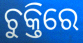
ଚୁକ୍ତିରେ